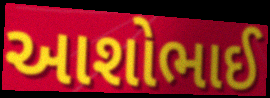
આશોભાઈ